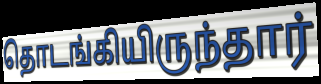
தொடங்கியிருந்தார்